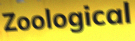
Zoological